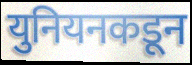
युनियनकडून